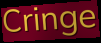
Cringe